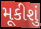
મૂકીશું